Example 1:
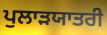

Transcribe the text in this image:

ਪੁਲਾੜਯਾਤਰੀ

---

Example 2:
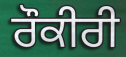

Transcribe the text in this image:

ਰੌਕੀਰੀ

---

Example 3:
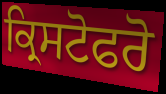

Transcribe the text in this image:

ਕ੍ਰਿਸਟੋਫਰੋ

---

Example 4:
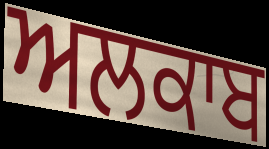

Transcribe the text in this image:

ਅਲਕਾਬ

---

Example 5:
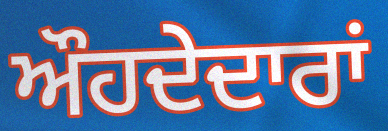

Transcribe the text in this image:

ਔਹਦੇਦਾਰਾਂ